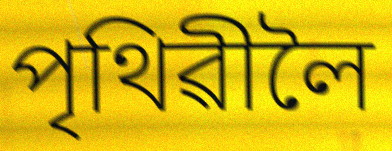
পৃথিৱীলৈ